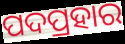
ପଦପ୍ରହାର